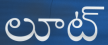
లూట్